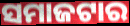
ସମାଜଟାର